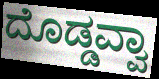
ದೊಡ್ಡವ್ವಾ